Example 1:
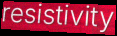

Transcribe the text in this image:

resistivity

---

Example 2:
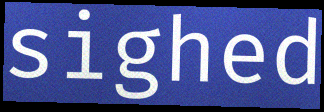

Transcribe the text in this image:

sighed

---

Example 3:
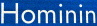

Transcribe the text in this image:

Hominin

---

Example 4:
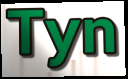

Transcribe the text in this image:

Tyn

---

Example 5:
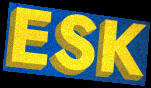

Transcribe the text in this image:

ESK